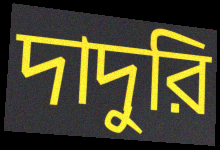
দাদুরি